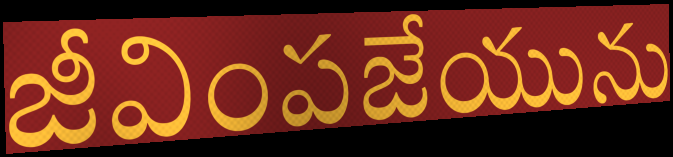
జీవింపజేయును